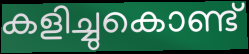
കളിച്ചുകൊണ്ട്